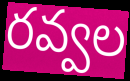
రవ్వల